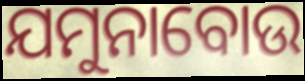
ଯମୁନାବୋଉ